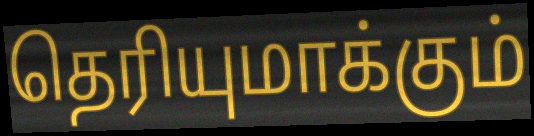
தெரியுமாக்கும்